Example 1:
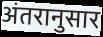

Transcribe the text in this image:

अंतरानुसार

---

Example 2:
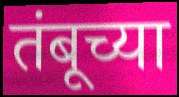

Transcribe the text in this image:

तंबूच्या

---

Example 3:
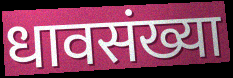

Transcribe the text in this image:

धावसंख्या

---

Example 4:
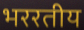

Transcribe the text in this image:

भररतीय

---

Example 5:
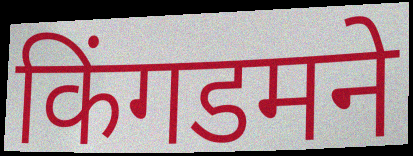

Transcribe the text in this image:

किंगडमने